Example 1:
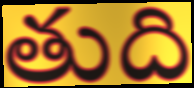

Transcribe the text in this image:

తుది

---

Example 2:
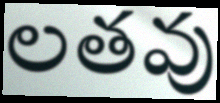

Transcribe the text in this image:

లతవు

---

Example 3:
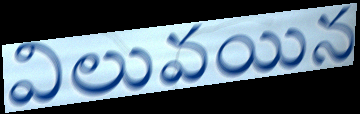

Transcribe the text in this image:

విలువయిన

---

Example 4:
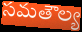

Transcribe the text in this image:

సమతౌల్య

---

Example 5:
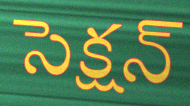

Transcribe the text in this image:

సెక్షన్